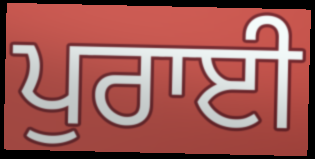
ਪੁਰਾਈ